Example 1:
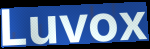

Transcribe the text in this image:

Luvox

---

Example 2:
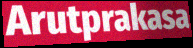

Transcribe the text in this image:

Arutprakasa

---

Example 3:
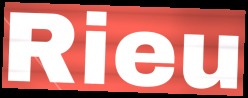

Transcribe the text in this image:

Rieu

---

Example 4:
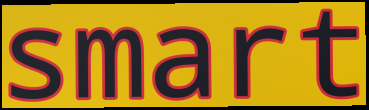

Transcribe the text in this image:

smart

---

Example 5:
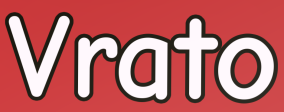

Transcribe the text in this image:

Vrato